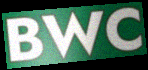
BWC